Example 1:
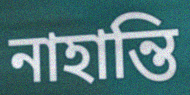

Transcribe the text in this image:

নাহান্তি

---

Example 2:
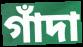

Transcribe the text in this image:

গাঁদা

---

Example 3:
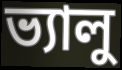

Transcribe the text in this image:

ভ্যালু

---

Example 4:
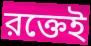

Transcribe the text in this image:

রক্তেই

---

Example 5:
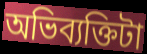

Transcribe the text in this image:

অভিব্যক্তিটা